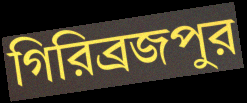
গিরিব্রজপুর